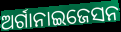
ଅର୍ଗାନାଇଜେସନ